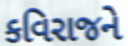
કવિરાજને